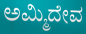
ಅಮ್ಮಿದೇವ